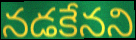
నడకేనని